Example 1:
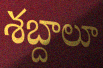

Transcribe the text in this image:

శబ్దాలూ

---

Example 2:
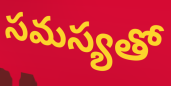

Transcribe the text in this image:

సమస్యతో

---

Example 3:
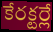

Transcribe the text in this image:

కేరక్టర్లే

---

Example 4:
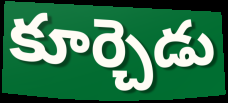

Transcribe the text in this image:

కూర్చెడు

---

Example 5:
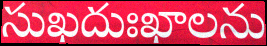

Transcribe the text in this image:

సుఖదుఃఖాలను